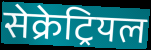
सेक्रेट्रियल